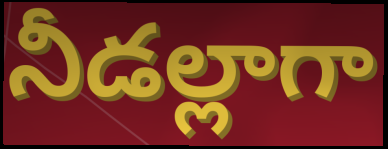
నీడల్లాగా